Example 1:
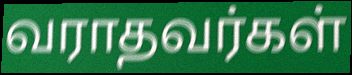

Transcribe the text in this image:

வராதவர்கள்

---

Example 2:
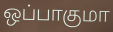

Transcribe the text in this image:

ஒப்பாகுமா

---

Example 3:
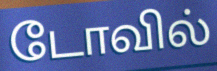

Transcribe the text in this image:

டோவில்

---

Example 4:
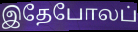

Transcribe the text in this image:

இதேபோலப்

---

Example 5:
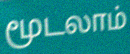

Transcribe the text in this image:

மூடலாம்